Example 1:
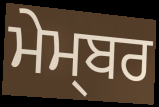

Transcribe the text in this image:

ਮੇਮ੍ਬਰ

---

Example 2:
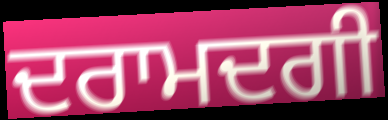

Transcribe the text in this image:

ਦਰਾਮਦਗੀ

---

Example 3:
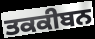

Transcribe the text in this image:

ਤਕਕੀਬਨ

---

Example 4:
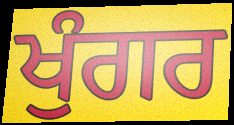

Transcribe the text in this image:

ਖੁੰਗਰ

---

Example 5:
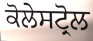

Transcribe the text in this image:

ਕੋਲੇਸਟ੍ਰੋਲ